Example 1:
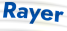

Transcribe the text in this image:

Rayer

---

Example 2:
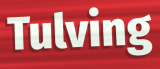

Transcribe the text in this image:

Tulving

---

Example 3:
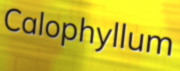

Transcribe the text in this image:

Calophyllum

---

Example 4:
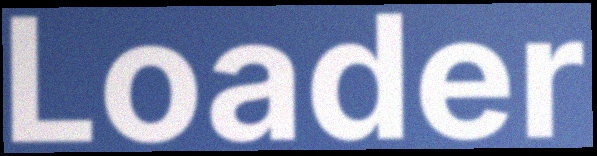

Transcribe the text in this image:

Loader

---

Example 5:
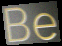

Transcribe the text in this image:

Be